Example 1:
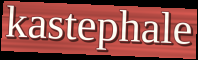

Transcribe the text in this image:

kastephale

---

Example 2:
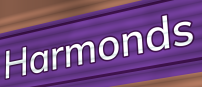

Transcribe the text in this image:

Harmonds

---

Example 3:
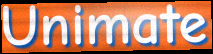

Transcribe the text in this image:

Unimate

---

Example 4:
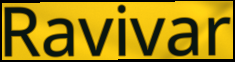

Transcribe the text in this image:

Ravivar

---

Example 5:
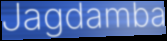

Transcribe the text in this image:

Jagdamba